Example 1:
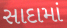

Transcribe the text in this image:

સાદામાં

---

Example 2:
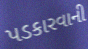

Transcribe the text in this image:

પડકારવાની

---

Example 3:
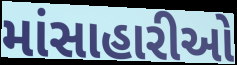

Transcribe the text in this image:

માંસાહારીઓ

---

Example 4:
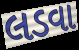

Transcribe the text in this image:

લડવા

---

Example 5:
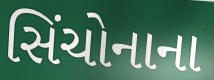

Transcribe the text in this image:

સિંચોનાના